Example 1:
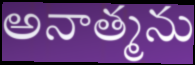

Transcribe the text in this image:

అనాత్మను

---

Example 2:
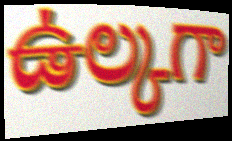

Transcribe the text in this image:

ఉల్కగా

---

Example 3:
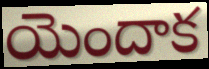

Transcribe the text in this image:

యెందాక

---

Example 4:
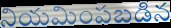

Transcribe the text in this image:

నియమింపబడిన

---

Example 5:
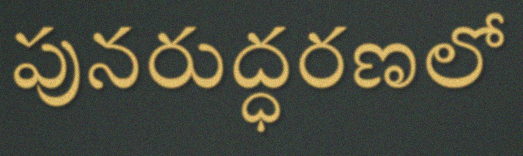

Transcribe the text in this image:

పునరుద్ధరణలో